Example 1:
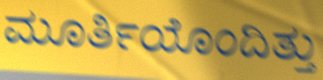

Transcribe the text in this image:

ಮೂರ್ತಿಯೊಂದಿತ್ತು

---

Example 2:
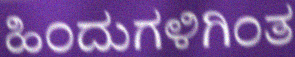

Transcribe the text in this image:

ಹಿಂದುಗಳಿಗಿಂತ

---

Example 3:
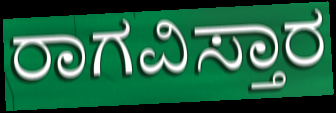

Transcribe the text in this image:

ರಾಗವಿಸ್ತಾರ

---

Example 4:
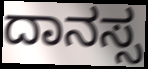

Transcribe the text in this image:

ದಾನಸ್ಸ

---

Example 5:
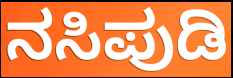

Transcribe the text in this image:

ನಸಿಪುಡಿ